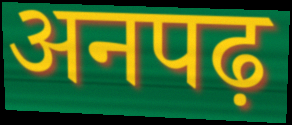
अनपढ़